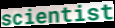
scientist